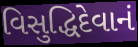
વિસુદ્ધિદેવાનં